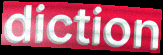
diction